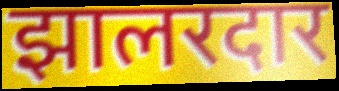
झालरदार